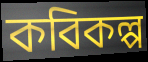
কবিকল্প